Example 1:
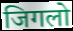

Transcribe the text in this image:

जिगलो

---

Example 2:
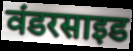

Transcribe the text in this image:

वंडरसाइड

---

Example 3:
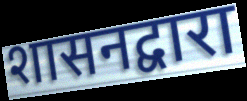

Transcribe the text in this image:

शासनद्वारा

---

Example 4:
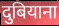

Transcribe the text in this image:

दुबियाना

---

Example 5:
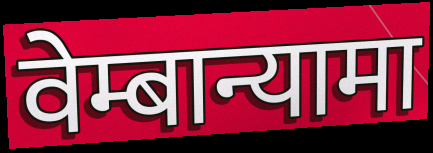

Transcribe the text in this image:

वेम्बान्यामा